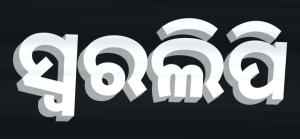
ସ୍ଵରଲିପି